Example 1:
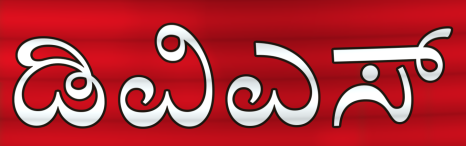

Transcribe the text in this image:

ಡಿವಿಎಸ್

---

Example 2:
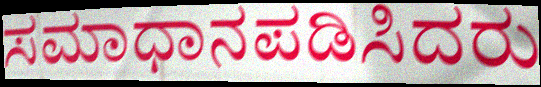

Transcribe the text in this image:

ಸಮಾಧಾನಪಡಿಸಿದರು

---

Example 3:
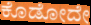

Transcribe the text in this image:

ಕೊಡೋದೇ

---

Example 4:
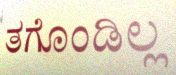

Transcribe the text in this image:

ತಗೊಂಡಿಲ್ಲ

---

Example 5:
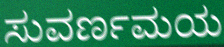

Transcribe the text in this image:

ಸುವರ್ಣಮಯ